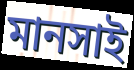
মানসাই